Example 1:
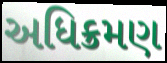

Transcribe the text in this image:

અધિક્રમણ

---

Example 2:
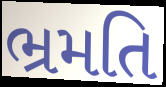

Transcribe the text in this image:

ભ્રમતિ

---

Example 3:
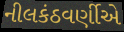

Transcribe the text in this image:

નીલકંઠવર્ણીએ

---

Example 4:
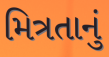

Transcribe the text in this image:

મિત્રતાનું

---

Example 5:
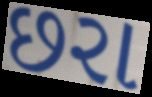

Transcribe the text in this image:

છરા